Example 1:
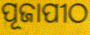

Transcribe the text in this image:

ପୂଜାପୀଠ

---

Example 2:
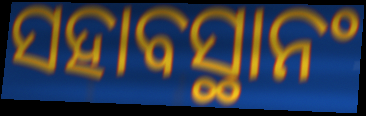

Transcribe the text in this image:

ସହାବସ୍ଥାନଂ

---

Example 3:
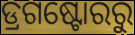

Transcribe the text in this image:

ଡ୍ରଗଷ୍ଟୋରରୁ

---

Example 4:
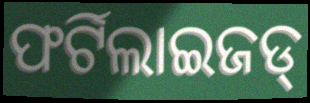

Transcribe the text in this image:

ଫର୍ଟିଲାଇଜଡ୍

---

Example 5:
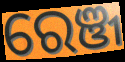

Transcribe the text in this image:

ରେଞ୍ଜ